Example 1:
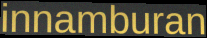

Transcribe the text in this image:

innamburan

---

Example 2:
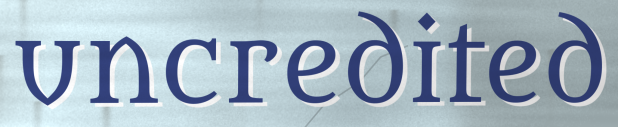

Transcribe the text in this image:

uncredited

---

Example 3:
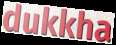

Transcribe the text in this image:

dukkha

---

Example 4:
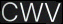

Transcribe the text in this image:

CWV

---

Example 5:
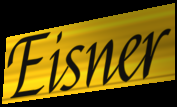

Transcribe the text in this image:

Eisner